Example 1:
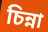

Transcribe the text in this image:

চিন্না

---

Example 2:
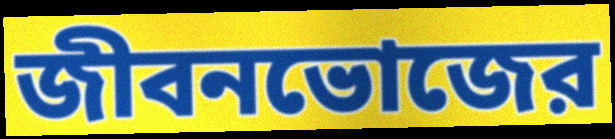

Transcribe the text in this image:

জীবনভোজের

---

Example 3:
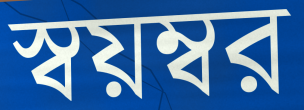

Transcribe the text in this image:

স্বয়ম্বর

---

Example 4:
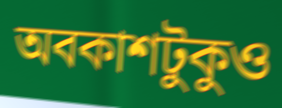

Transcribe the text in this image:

অবকাশটুকুও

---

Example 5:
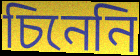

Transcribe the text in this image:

চিনেনি